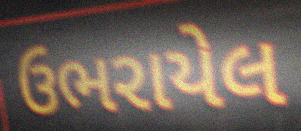
ઉભરાયેલ